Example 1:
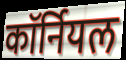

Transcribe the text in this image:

कॉर्नियल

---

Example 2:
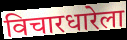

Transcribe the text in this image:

विचारधारेला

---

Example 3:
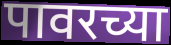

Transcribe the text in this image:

पावरच्या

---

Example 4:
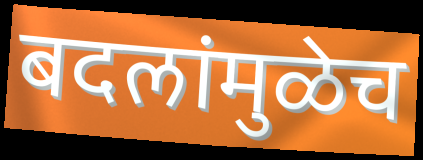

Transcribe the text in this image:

बदलांमुळेच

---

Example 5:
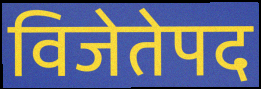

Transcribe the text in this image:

विजेतेपद